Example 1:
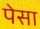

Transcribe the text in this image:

पेसा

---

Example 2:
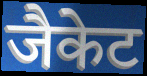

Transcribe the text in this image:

जैकेट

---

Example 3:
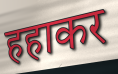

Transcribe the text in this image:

हहाकर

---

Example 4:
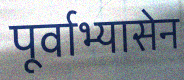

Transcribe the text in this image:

पूर्वाभ्यासेन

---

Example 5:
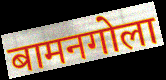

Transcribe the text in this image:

बामनगोला